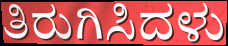
ತಿರುಗಿಸಿದಳು